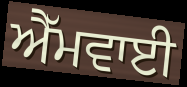
ਐੱਮਵਾਈ